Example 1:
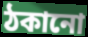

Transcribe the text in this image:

ঠকানো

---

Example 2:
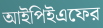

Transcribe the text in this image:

আইপিইএফের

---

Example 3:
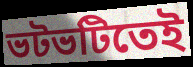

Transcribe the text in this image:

ভটভটিতেই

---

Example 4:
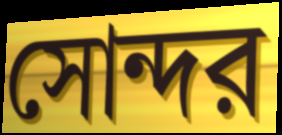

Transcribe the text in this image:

সোন্দর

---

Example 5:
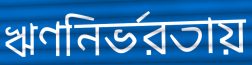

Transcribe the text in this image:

ঋণনির্ভরতায়